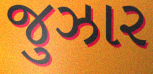
જુઝાર